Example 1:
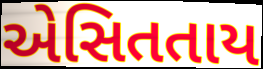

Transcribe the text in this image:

એસિતતાય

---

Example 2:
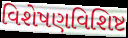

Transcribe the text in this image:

વિશેષણવિશિષ્ટ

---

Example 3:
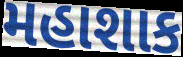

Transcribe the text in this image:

મહાશાક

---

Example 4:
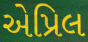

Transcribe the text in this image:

એપ્રિલ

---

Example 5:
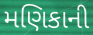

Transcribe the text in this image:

મણિકાની